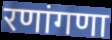
रणांगणा